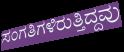
ಸಂಗತಿಗಳಿರುತ್ತಿದ್ದವು